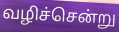
வழிச்சென்று